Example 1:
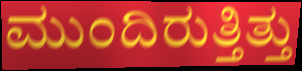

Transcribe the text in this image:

ಮುಂದಿರುತ್ತಿತ್ತು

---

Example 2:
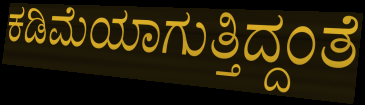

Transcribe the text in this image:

ಕಡಿಮೆಯಾಗುತ್ತಿದ್ದಂತೆ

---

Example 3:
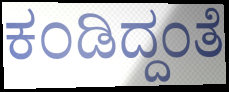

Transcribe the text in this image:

ಕಂಡಿದ್ದಂತೆ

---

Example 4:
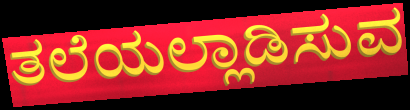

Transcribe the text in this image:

ತಲೆಯಲ್ಲಾಡಿಸುವ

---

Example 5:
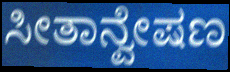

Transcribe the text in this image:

ಸೀತಾನ್ವೇಷಣ